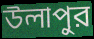
উলাপুর